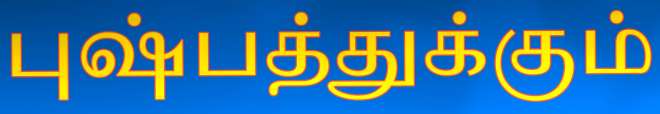
புஷ்பத்துக்கும்